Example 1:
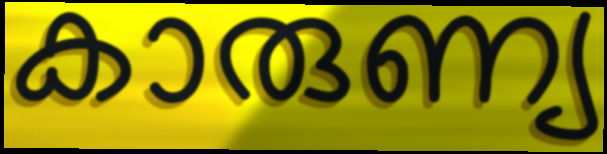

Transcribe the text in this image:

കാരുണ്യ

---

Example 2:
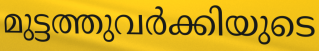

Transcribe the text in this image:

മുട്ടത്തുവർക്കിയുടെ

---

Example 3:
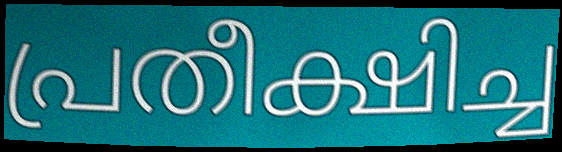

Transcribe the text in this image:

പ്രതീക്ഷിച്ച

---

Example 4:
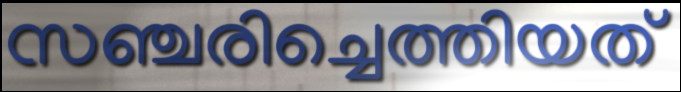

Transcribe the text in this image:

സഞ്ചരിച്ചെത്തിയത്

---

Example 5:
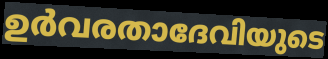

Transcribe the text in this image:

ഉർവരതാദേവിയുടെ